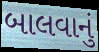
બાલવાનું